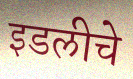
इडलीचे